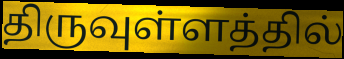
திருவுள்ளத்தில்